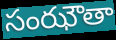
సంఝౌతా